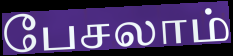
பேசலாம்